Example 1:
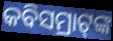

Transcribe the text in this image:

କବିସମ୍ରାଟ୍‌ଙ୍କ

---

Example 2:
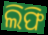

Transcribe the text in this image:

ଲିଫି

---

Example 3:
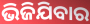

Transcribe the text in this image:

ଭିଜିଯିବାର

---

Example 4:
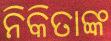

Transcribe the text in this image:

ନିକିତାଙ୍କ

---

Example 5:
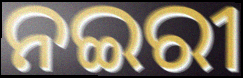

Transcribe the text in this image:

ନଇରୀ